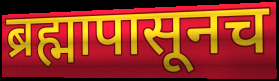
ब्रह्मापासूनच